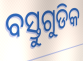
ବସ୍ତୁଗୁଡିକ